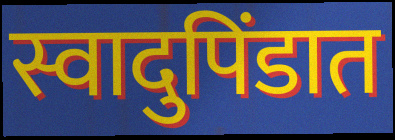
स्वादुपिंडात